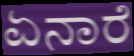
ಏನಾರೆ